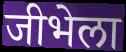
जीभेला